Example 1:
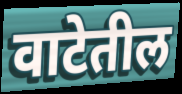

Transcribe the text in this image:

वाटेतील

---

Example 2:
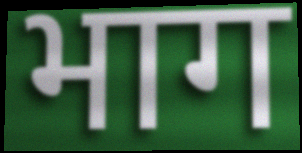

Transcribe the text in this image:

भाग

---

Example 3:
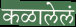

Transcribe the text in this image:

कळालेलं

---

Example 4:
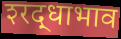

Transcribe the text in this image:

श्रद्धाभाव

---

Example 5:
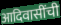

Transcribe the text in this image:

आदिवासींची